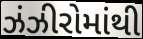
ઝંઝીરોમાંથી